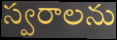
స్వరాలను